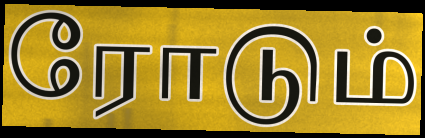
ரோடும்